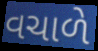
વચાળે